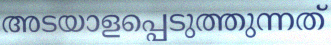
അടയാളപ്പെടുത്തുന്നത്